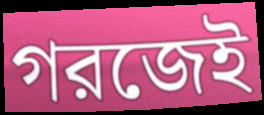
গরজেই